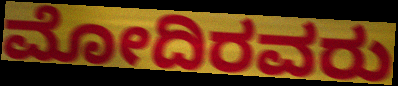
ಮೋದಿರವರು